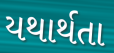
યથાર્થતા